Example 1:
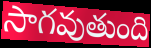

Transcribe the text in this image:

సాగవుతుంది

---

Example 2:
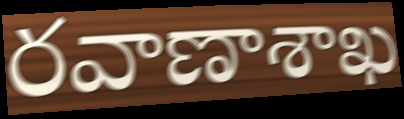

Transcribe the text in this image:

రవాణాశాఖ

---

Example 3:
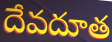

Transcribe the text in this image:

దేవదూత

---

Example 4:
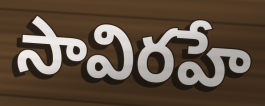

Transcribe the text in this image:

సావిరహే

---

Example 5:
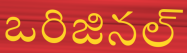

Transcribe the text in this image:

ఒరిజినల్